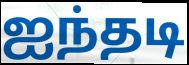
ஐந்தடி